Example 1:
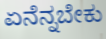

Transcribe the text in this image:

ಏನೆನ್ನಬೇಕು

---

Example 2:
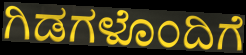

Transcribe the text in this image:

ಗಿಡಗಳೊಂದಿಗೆ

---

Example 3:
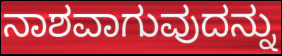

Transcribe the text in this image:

ನಾಶವಾಗುವುದನ್ನು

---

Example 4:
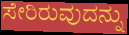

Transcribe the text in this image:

ಸೇರಿರುವುದನ್ನು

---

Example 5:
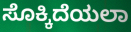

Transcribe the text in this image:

ಸೊಕ್ಕಿದೆಯಲಾ